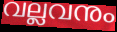
വല്ലവനും